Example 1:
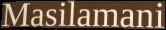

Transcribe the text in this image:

Masilamani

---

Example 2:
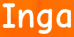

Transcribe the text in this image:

Inga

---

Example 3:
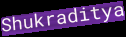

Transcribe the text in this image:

Shukraditya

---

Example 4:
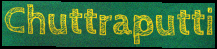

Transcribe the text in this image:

Chuttraputti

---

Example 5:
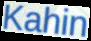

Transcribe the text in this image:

Kahin